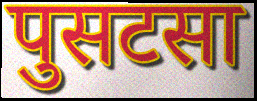
पुसटसा